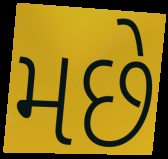
મછે